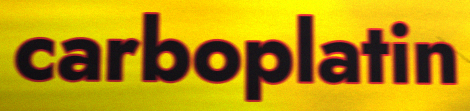
carboplatin